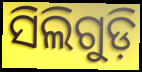
ସିଲିଗୁଡ଼ି